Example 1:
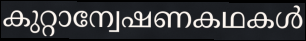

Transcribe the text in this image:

കുറ്റാന്വേഷണകഥകൾ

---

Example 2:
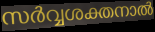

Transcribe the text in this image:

സർവ്വശക്തനാൽ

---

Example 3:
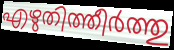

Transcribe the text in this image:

എഴുതിത്തീർത്തു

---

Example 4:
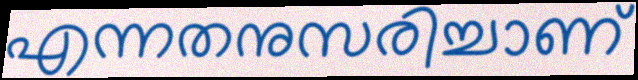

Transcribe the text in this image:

എന്നതനുസരിച്ചാണ്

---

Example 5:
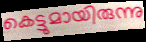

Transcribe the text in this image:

കെട്ടുമായിരുന്നു